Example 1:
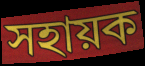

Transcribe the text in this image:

সহায়ক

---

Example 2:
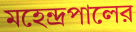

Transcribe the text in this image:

মহেন্দ্রপালের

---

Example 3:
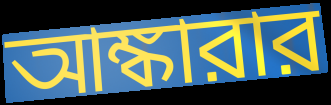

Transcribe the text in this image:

আঙ্কারার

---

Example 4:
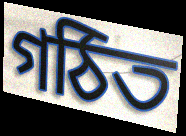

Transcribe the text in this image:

গঠিত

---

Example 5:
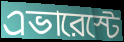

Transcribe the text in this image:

এভারেস্টে